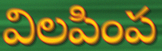
విలపింప